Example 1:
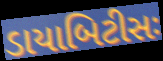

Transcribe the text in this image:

ડાયાબિટીસઃ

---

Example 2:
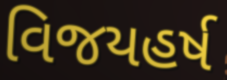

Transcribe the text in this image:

વિજયહર્ષ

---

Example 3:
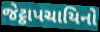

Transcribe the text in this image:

જેટ્ઠાપચાયિનો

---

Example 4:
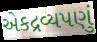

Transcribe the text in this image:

એકદ્રવ્યપણું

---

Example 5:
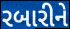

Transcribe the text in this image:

રબારીને